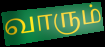
வாரும்